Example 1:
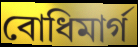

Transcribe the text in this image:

বোধিমার্গ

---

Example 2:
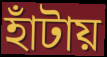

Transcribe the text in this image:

হাঁটায়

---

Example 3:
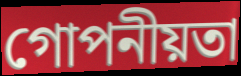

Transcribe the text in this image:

গোপনীয়তা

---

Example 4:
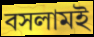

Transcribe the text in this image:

বসলামই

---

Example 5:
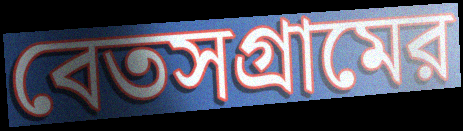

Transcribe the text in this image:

বেতসগ্রামের